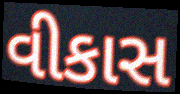
વીકાસ